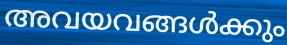
അവയവങ്ങൾക്കും